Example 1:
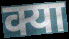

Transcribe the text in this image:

क्या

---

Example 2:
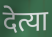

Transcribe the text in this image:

देत्या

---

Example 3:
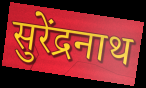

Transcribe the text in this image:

सुरेंद्रनाथ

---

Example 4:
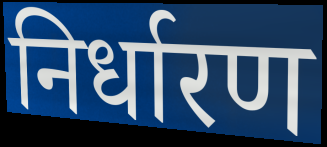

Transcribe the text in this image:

निर्धारण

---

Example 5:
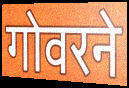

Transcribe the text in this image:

गोवरने